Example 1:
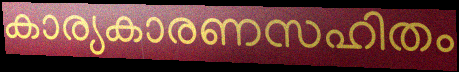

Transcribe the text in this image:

കാര്യകാരണസഹിതം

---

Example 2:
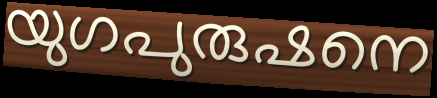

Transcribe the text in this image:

യുഗപുരുഷനെ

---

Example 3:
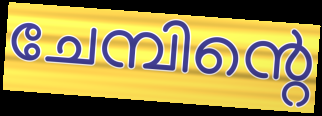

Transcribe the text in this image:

ചേമ്പിന്റെ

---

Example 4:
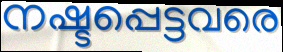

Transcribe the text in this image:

നഷ്ടപ്പെട്ടവരെ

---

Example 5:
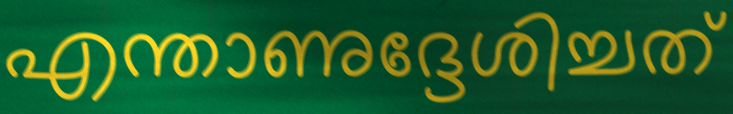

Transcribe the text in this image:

എന്താണുദ്ദേശിച്ചത്